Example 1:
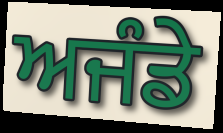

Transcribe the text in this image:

ਅਜੰਡੇ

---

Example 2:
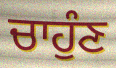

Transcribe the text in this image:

ਚਾਹੁੰਣ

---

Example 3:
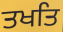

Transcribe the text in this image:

ਤਖਤਿ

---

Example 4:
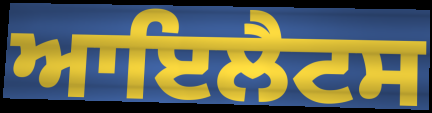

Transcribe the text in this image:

ਆਇਲੈਟਸ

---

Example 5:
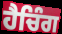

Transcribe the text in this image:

ਹੈਚਿੰਗ